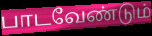
பாடவேண்டும்